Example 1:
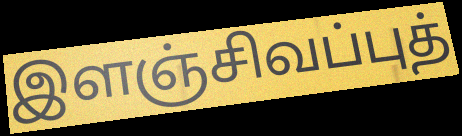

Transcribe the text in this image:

இளஞ்சிவப்புத்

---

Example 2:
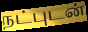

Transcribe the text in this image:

நட்புடன்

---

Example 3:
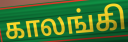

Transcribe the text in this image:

காலங்கி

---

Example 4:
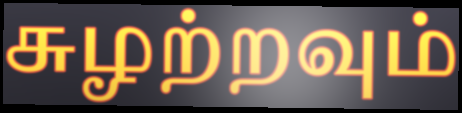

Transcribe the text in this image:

சுழற்றவும்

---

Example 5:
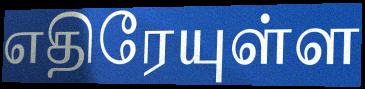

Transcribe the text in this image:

எதிரேயுள்ள